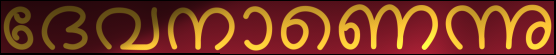
ദേവനാണെന്നു